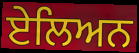
ਏਲਿਅਨ